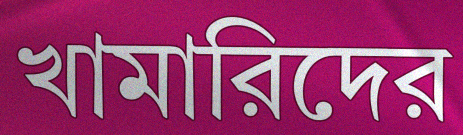
খামারিদের